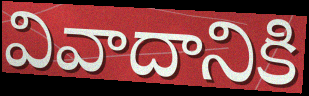
వివాదానికి